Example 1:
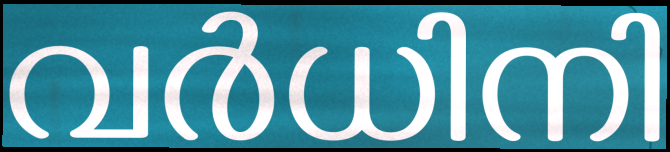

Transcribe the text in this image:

വർധിനി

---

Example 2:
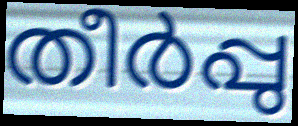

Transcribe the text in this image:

തീർപ്പു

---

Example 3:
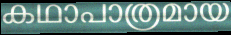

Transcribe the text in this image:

കഥാപാത്രമായ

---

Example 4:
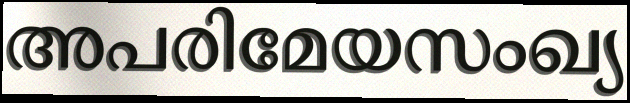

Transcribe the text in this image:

അപരിമേയസംഖ്യ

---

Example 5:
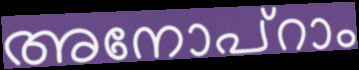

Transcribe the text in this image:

അനോപ്റാം